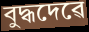
বুদ্ধদেৱে